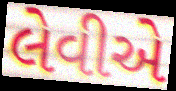
લેવીએ